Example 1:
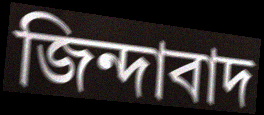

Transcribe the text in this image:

জিন্দাবাদ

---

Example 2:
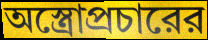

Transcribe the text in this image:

অস্ত্রোপ্রচারের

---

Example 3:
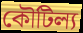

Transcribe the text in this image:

কৌটিল্য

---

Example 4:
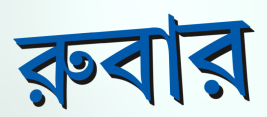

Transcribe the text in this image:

রুবার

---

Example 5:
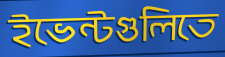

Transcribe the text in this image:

ইভেন্টগুলিতে